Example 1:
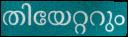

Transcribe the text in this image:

തിയേറ്ററും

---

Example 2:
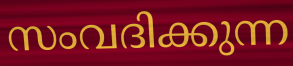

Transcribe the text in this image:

സംവദിക്കുന്ന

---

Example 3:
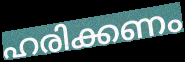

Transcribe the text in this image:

ഹരിക്കണം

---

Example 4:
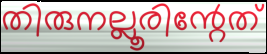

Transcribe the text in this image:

തിരുനല്ലൂരിന്റേത്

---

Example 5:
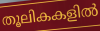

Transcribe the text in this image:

തൂലികകളിൽ